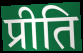
प्रीति